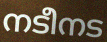
നടീനട